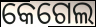
କେଗେଲ